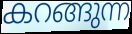
കറങ്ങുന്ന